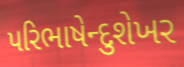
પરિભાષેન્દુશેખર